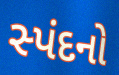
સ્પંદનો